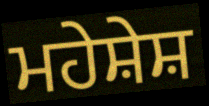
ਮਹੇਸ਼ੇਸ਼